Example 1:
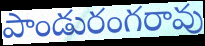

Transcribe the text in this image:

పాండురంగరావు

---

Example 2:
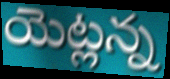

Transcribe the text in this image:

యెట్లన్న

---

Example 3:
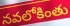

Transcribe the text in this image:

నవలోకింతు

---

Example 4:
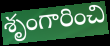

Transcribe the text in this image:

శృంగారించి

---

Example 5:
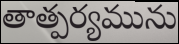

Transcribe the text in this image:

తాత్పర్యమును